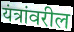
यंत्रांवरील